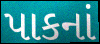
પાકનાં